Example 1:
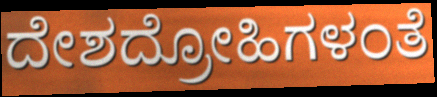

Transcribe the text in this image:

ದೇಶದ್ರೋಹಿಗಳಂತೆ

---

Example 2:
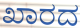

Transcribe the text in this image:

ಖಾರದ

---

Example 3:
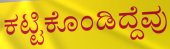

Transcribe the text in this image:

ಕಟ್ಟಿಕೊಂಡಿದ್ದೆವು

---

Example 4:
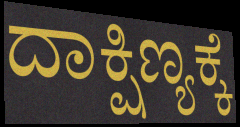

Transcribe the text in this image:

ದಾಕ್ಷಿಣ್ಯಕ್ಕೆ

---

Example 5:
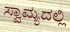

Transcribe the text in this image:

ಸ್ವಾಮ್ಯದಲ್ಲಿ